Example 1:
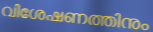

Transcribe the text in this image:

വിശേഷണത്തിനും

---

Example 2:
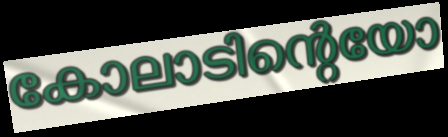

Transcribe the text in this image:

കോലാടിന്റെയോ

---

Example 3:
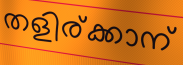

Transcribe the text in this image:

തളിര്ക്കാന്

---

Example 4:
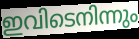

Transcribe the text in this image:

ഇവിടെനിന്നും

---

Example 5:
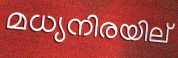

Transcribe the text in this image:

മധ്യനിരയില്